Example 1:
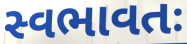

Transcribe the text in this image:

સ્વભાવતઃ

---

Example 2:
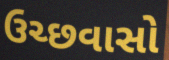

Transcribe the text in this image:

ઉચ્છવાસો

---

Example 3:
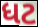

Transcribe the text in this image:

ધટ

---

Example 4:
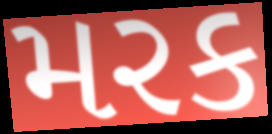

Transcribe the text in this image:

મરક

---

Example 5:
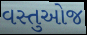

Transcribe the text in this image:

વસ્તુઓજ